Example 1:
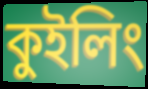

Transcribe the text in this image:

কুইলিং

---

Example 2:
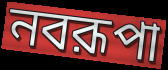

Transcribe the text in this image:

নবরূপা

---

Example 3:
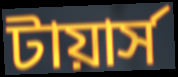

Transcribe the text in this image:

টায়ার্স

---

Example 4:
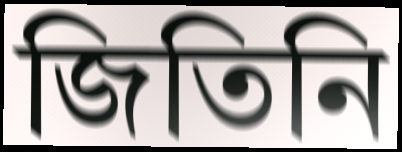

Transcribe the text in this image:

জিতিনি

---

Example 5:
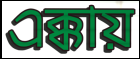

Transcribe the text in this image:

এক্কায়